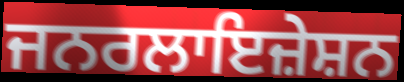
ਜਨਰਲਾਇਜ਼ੇਸ਼ਨ